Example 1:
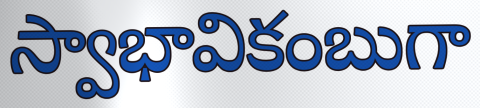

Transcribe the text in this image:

స్వాభావికంబుగా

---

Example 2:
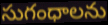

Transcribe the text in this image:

సుగంధాలను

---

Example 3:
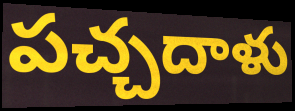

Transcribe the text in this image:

పచ్చదాళు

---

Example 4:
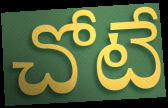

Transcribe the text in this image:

చోటే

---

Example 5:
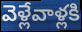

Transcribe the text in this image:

వెళ్లేవాళ్లకి